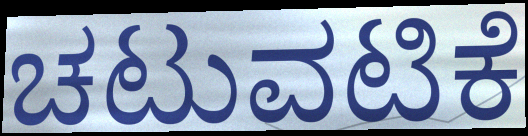
ಚಟುವಟಿಕೆ